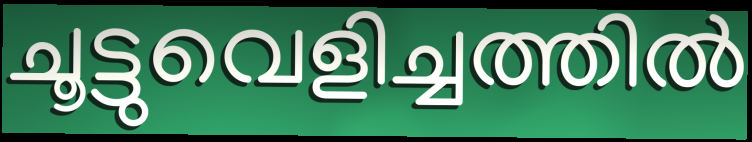
ചൂട്ടുവെളിച്ചത്തിൽ